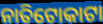
ନାତିଟୋକାଟା